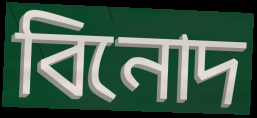
বিনোদ